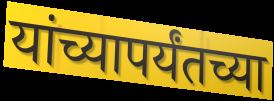
यांच्यापर्यंतच्या